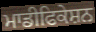
ਮਾਡੀਫਿਕੇਸ਼ਨ